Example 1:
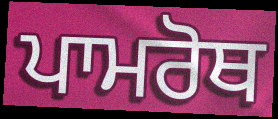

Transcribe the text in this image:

ਪਾਮਰੋਥ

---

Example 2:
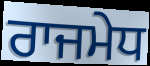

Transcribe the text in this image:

ਰਾਜਮੇਧ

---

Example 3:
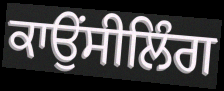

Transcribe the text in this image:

ਕਾਉਂਸੀਲਿੰਗ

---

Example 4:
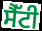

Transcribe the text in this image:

ਸੈੱਟੀ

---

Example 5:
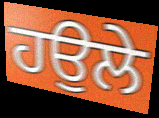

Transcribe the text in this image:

ਹਉਲੇ